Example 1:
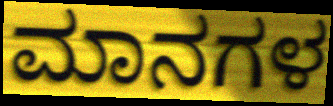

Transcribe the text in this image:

ಮಾನಗಳ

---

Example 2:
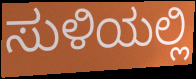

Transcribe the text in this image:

ಸುಳಿಯಲ್ಲಿ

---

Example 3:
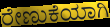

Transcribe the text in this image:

ರೇಣುಕೆಯಾಗಿ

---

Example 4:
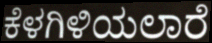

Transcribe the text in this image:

ಕೆಳಗಿಳಿಯಲಾರೆ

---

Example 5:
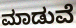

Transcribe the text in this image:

ಮಾಡುವೆ